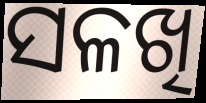
ସଳଖି